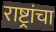
राष्ट्रांचा